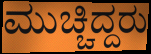
ಮುಚ್ಚಿದ್ದರು